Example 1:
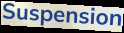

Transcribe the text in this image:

Suspension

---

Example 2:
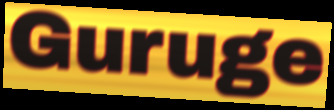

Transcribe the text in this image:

Guruge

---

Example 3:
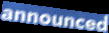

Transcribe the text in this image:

announced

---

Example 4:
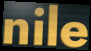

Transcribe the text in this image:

nile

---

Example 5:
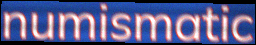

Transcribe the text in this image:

numismatic